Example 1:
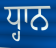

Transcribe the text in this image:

ਧ੍ਹਾਨ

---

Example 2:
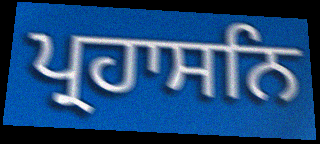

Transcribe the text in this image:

ਪ੍ਰਹਾਸਨਿ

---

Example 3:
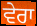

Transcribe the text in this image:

ਵੇਰਾ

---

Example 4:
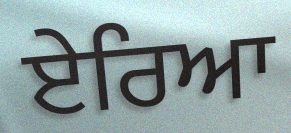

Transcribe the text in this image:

ਏਰਿਆ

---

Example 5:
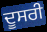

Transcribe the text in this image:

ਦੂਸਰੀ